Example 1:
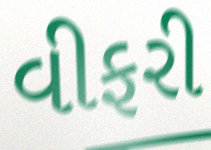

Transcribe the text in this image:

વીફરી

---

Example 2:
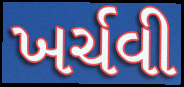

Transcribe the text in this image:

ખર્ચવી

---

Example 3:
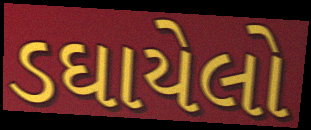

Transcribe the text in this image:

ડઘાયેલો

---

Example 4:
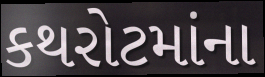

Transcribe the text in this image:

કથરોટમાંના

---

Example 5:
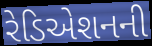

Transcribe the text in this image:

રેડિએશનની